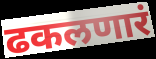
ढकलणारं